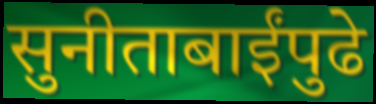
सुनीताबाईंपुढे